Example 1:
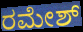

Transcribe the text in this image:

ರಮೇಶ್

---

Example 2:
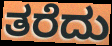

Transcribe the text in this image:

ತರೆದು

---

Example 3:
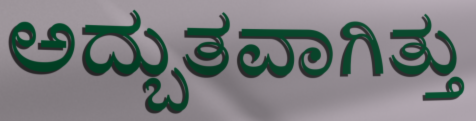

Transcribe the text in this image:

ಅದ್ಬುತವಾಗಿತ್ತು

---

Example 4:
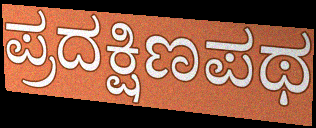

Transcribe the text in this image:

ಪ್ರದಕ್ಷಿಣಪಥ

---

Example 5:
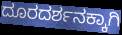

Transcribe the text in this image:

ದೂರದರ್ಶನಕ್ಕಾಗಿ